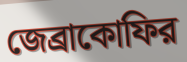
জেব্রাকোফির